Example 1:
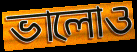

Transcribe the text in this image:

ভালোও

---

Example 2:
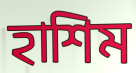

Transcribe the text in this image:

হাশিম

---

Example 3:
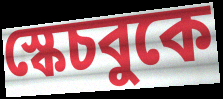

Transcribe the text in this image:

স্কেচবুকে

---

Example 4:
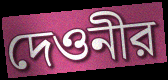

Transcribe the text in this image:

দেওনীর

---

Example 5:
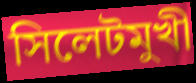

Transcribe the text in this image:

সিলেটমুখী